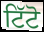
ਟਿੱਟੋ